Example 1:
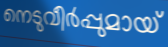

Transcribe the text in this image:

നെടുവീർപ്പുമായ്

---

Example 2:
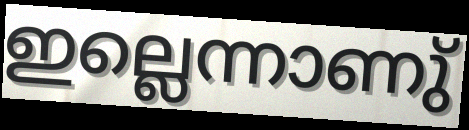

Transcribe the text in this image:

ഇല്ലെന്നാണു്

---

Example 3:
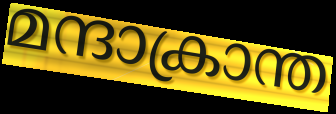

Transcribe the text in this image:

മന്ദാക്രാന്ത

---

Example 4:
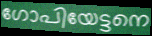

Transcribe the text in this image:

ഗോപിയേട്ടനെ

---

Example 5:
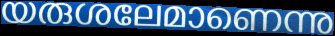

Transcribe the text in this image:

യരുശലേമാണെന്നു